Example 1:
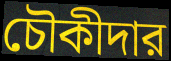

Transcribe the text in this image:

চৌকীদার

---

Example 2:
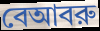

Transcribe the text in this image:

বেআবরু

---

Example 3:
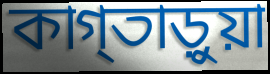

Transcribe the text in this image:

কাগ্‌তাড়ুয়া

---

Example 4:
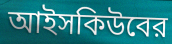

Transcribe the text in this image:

আইসকিউবের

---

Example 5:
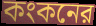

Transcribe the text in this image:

কংকনের